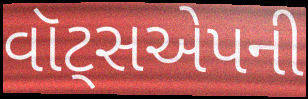
વૉટ્સએપની